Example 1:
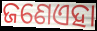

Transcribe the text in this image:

ଜଣେଏହା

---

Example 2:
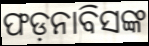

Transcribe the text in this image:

ଫଡ଼ନାବିସଙ୍କ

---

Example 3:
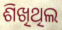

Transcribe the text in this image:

ଶିଖିଥିଲ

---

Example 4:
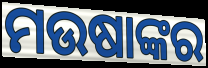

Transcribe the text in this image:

ମଉଷାଙ୍କର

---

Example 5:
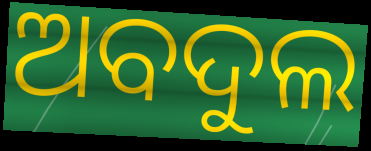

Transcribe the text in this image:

ଅବଦୁଲ